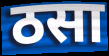
ठसा